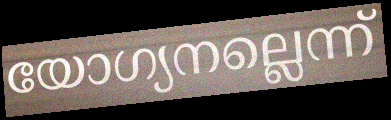
യോഗ്യനല്ലെന്ന്